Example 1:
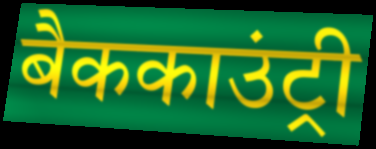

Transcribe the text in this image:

बैककाउंट्री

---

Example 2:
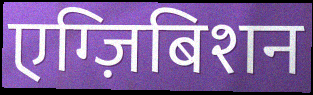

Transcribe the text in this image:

एग्ज़िबिशन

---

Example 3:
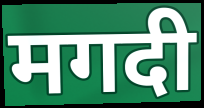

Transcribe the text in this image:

मगदी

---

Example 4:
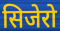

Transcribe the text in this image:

सिजेरो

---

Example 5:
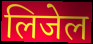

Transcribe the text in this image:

लिजेल